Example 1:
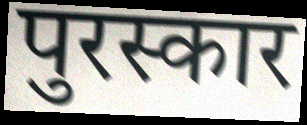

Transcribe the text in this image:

पुरस्कार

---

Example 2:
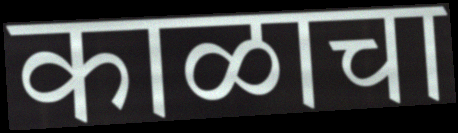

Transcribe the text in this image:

काळाचा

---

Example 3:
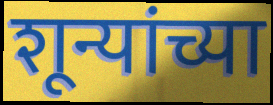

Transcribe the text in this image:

शून्यांच्या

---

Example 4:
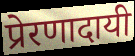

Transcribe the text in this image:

प्रेरणादायी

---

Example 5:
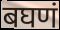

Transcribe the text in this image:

बघणं